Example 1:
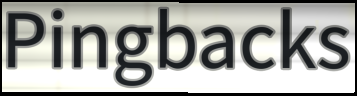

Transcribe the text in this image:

Pingbacks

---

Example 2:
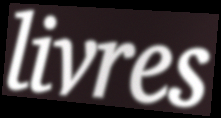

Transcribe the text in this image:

livres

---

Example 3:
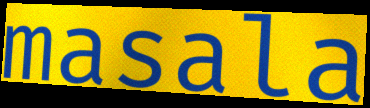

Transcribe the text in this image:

masala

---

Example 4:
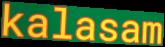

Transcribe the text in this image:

kalasam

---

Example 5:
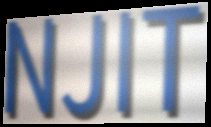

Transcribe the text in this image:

NJIT